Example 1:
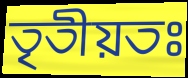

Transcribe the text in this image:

তৃতীয়তঃ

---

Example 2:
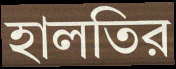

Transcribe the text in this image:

হালতির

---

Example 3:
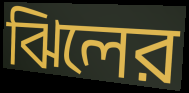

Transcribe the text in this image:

ঝিলের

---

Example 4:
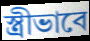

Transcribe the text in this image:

স্ত্রীভাবে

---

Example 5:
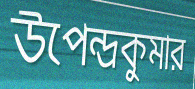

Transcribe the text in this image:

উপেন্দ্রকুমার